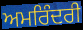
ਅਮਰਿੰਦਰੀ